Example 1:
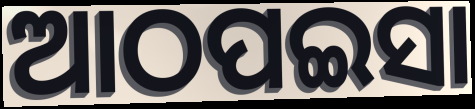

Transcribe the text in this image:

ଆଠପଇସା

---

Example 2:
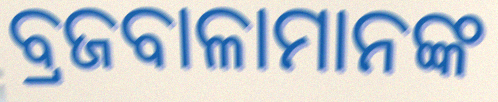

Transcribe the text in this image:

ବ୍ରଜବାଳାମାନଙ୍କ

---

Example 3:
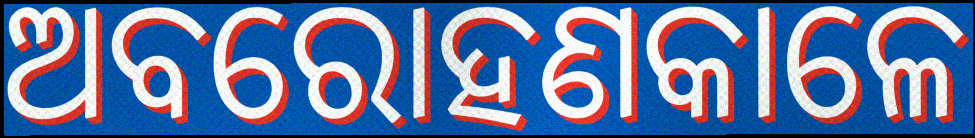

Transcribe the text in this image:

ଅବରୋହଣକାଳେ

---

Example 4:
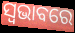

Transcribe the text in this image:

ସ୍ବଭାବରେ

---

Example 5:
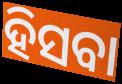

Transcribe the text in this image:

ହିସବା